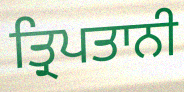
ਤ੍ਰਿਪਤਾਨੀ